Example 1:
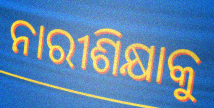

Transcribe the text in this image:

ନାରୀଶିକ୍ଷାକୁ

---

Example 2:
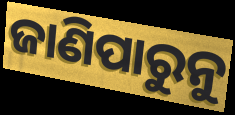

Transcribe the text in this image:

ଜାଣିପାରୁନୁ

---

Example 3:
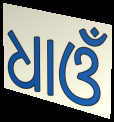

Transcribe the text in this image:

ଧାଓଁ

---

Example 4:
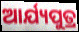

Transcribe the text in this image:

ଆର୍ଯ୍ୟପୁତ୍ର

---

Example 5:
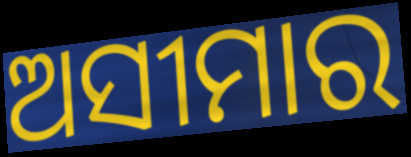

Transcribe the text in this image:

ଅସୀମାର